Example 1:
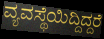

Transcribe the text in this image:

ವ್ಯವಸ್ಥೆಯಿದ್ದಿದ್ದರೆ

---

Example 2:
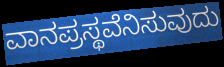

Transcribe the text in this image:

ವಾನಪ್ರಸ್ಥವೆನಿಸುವುದು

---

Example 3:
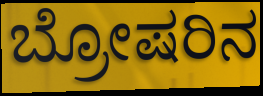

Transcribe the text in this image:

ಬ್ರೋಷರಿನ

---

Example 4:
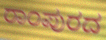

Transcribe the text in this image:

ರಾಂಪುರದ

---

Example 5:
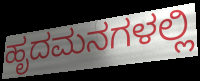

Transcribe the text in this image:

ಹೃದಮನಗಳಲ್ಲಿ